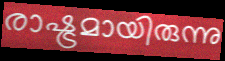
രാഷ്ട്രമായിരുന്നു